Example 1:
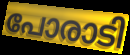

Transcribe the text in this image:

പോരാടി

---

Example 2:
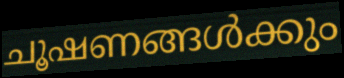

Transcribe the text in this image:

ചൂഷണങ്ങൾക്കും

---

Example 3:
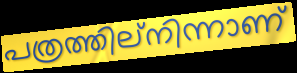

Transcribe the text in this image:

പത്രത്തില്നിന്നാണ്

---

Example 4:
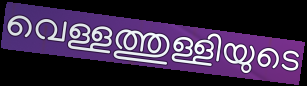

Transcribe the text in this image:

വെള്ളത്തുള്ളിയുടെ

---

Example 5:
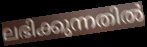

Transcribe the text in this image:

ലഭിക്കുന്നതിൽ